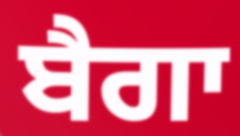
ਬੈਗਾ